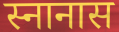
स्नानास